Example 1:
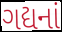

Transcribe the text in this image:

ગદ્યનાં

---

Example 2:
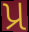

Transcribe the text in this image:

પ્ર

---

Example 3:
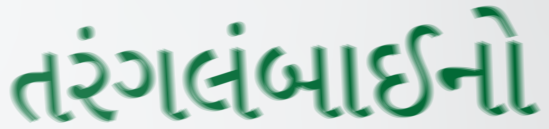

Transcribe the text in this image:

તરંગલંબાઈનો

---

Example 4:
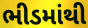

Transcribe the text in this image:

ભીડમાંથી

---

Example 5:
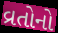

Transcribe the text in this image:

વ્રતોનો